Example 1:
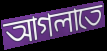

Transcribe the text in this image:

আগলাতে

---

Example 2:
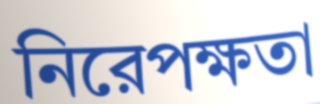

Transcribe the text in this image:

নিরেপক্ষতা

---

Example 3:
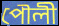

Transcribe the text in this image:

পৌলী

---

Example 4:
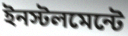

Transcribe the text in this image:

ইনস্টলমেন্টে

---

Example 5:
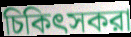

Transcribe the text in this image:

চিকিৎসকরা